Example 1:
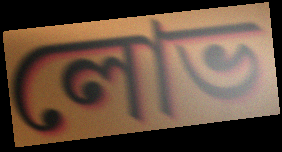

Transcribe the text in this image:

লোভ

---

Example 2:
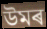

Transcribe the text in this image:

উমৰ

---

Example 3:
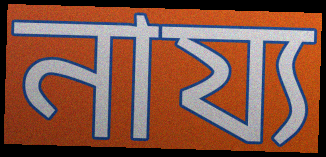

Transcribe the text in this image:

নায্য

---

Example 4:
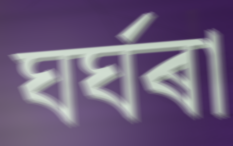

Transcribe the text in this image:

ঘৰ্ঘৰা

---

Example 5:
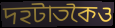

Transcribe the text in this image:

দহটাতকৈও